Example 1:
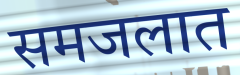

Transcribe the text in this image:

समजलात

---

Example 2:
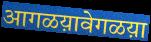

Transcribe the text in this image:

आगळय़ावेगळय़ा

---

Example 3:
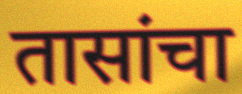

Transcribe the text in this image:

तासांचा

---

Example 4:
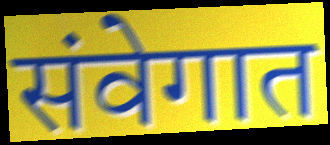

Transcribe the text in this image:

संवेगात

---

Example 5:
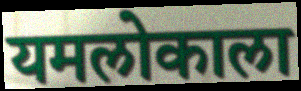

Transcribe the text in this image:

यमलोकाला